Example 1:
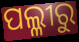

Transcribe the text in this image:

ପଲ୍ଳୀରୁ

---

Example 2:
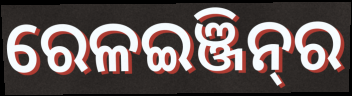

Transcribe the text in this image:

ରେଳଇଞ୍ଜିନ୍‌ର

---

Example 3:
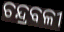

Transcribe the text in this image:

ଚନ୍ଦ୍ରବଳୀ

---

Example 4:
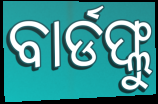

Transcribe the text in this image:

ବାର୍ଡଫ୍ଲୁ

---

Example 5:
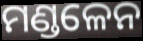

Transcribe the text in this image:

ମଣ୍ଡଳେନ